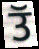
उॅ